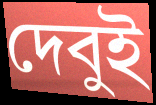
দেবুই